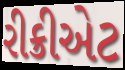
રીક્રીએટ